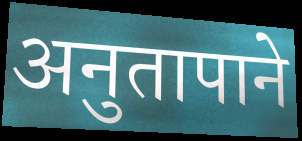
अनुतापाने